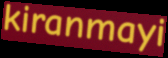
kiranmayi